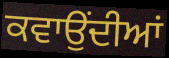
ਕਵਾਉਂਦੀਆਂ